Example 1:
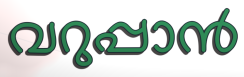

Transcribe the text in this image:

വറുപ്പാൻ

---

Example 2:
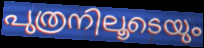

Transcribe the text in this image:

പുത്രനിലൂടെയും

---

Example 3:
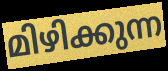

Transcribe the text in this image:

മിഴിക്കുന്ന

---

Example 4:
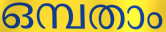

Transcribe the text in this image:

ഒമ്പതാം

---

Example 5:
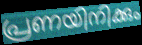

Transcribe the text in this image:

പ്രണയിനിക്കും